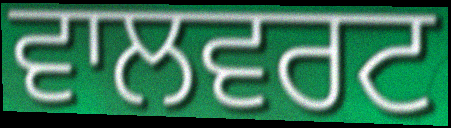
ਵਾਲਵਰਟ